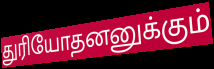
துரியோதனனுக்கும்